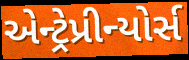
એન્ટ્રેપ્રીન્યોર્સ